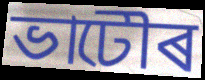
ভাটৌৰ